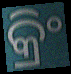
କ୍ରିଂ